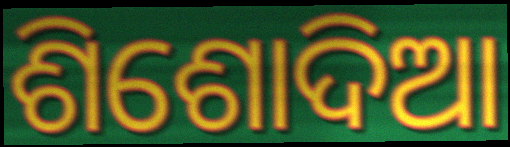
ଶିଶୋଦିଆ